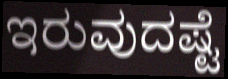
ಇರುವುದಷ್ಟೆ